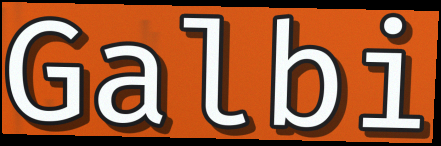
Galbi